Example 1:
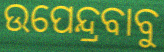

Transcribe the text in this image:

ଉପେନ୍ଦ୍ରବାବୁ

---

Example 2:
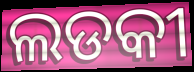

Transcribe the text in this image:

ଲଡକୀ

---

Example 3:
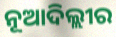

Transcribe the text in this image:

ନୂଆଦିଲ୍ଲୀର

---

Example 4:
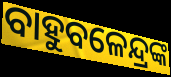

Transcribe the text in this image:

ବାହୁବଳେନ୍ଦ୍ରଙ୍କ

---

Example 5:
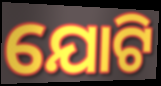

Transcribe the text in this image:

ଯୋଟି